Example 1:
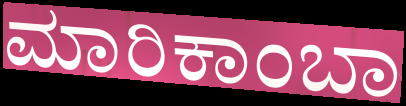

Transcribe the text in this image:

ಮಾರಿಕಾಂಬಾ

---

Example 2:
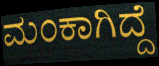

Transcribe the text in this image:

ಮಂಕಾಗಿದ್ದೆ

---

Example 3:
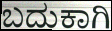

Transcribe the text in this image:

ಬದುಕಾಗಿ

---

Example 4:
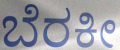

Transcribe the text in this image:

ಬೆರಕೀ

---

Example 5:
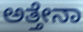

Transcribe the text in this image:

ಅತ್ತೇನಾ